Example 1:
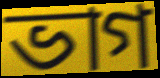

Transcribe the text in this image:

ভাগ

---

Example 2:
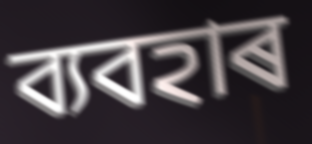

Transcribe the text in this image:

ব্যবহাৰ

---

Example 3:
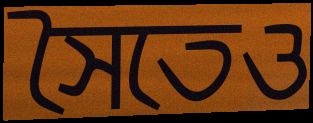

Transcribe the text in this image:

সৈতেও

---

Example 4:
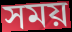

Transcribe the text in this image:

সময়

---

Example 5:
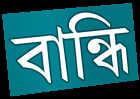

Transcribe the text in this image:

বান্ধি